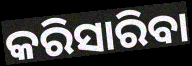
କରିସାରିବା